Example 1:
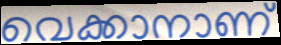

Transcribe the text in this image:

വെക്കാനാണ്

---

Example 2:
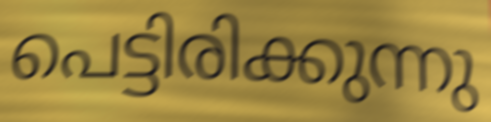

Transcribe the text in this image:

പെട്ടിരിക്കുന്നു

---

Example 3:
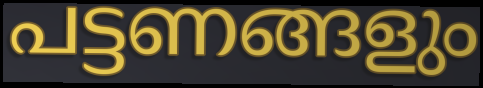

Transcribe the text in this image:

പട്ടണങ്ങളും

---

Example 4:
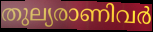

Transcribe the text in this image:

തുല്യരാണിവർ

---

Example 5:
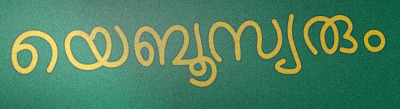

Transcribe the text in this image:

യെബൂസ്യരും